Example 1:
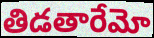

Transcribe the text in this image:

తిడతారేమో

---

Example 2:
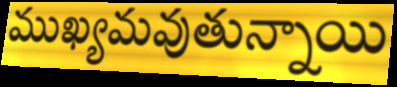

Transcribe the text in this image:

ముఖ్యమవుతున్నాయి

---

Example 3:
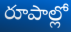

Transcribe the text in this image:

రూపాల్లో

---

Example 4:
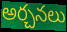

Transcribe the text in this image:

అర్చనలు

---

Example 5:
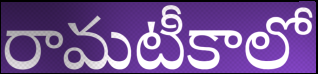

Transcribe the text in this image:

రామటీకాలో